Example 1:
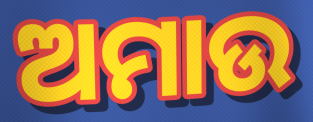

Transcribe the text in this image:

ଅମାଉ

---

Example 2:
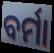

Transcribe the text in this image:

ବର୍ମା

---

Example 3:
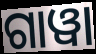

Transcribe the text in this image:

ଗାୱା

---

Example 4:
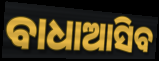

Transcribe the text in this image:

ବାଧାଆସିବ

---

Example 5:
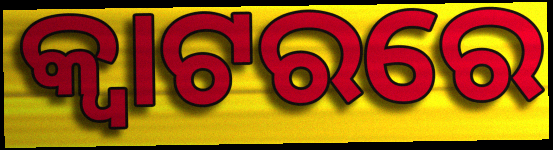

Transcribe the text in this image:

କ୍ୱାଟରରେ